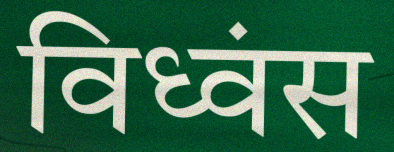
विध्वंस